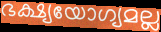
ഭക്ഷ്യയോഗ്യമല്ല